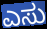
ಎಸು